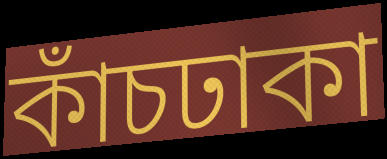
কাঁচঢাকা